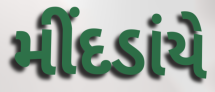
મીંદડાંયે